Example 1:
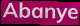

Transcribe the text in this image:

Abanye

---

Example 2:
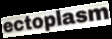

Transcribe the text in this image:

ectoplasm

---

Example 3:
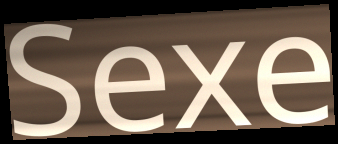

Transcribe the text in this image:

Sexe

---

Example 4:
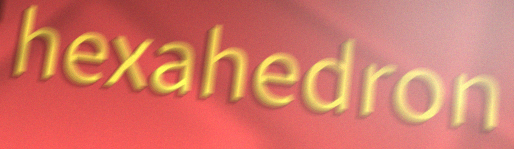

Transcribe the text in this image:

hexahedron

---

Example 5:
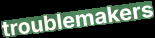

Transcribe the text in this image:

troublemakers